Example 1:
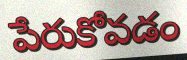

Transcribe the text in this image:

పేరుకోవడం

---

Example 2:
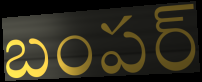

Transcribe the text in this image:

బంపర్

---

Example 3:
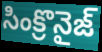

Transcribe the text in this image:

సింక్రొనైజ్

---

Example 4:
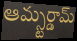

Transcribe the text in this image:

ఆమ్స్టర్డామ్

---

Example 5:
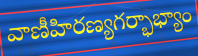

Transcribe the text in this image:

వాణీహిరణ్యగర్భాభ్యాం